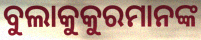
ବୁଲାକୁକୁରମାନଙ୍କ